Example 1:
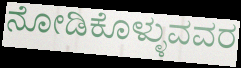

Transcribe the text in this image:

ನೋಡಿಕೊಳ್ಳುವವರ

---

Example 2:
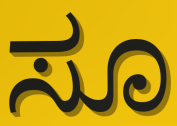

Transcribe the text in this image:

ಸೂ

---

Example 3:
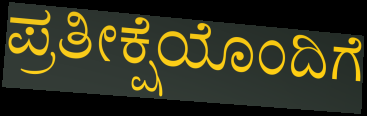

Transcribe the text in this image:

ಪ್ರತೀಕ್ಷೆಯೊಂದಿಗೆ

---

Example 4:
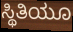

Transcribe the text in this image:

ಸ್ಥಿತಿಯೂ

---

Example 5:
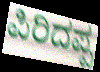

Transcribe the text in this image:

ಪಿರಿದಪ್ಪ